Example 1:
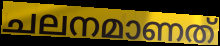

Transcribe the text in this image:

ചലനമാണത്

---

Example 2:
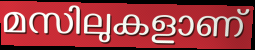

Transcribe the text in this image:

മസിലുകളാണ്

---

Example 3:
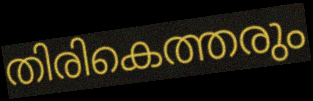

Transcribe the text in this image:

തിരികെത്തരും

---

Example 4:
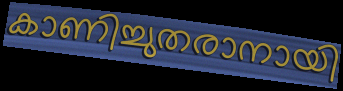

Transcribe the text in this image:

കാണിച്ചുതരാനായി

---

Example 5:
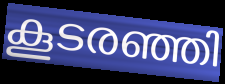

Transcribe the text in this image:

കൂടരഞ്ഞി